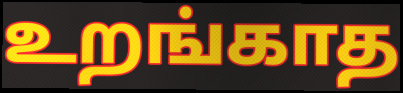
உறங்காத